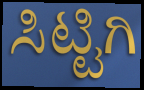
ಸಿಟ್ಟಿಗಿ